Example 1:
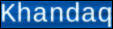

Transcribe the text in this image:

Khandaq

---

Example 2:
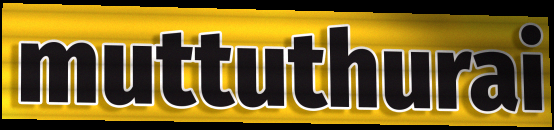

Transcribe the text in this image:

muttuthurai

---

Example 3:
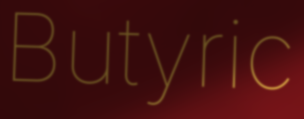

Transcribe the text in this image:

Butyric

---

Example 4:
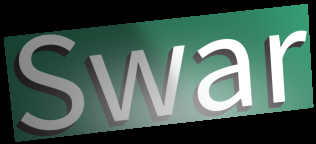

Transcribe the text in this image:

Swar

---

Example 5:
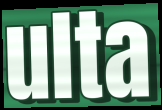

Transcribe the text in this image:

ulta